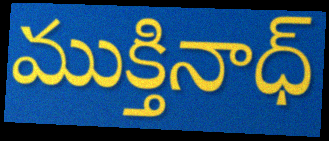
ముక్తినాధ్